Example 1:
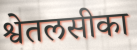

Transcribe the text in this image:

श्वेतलसीका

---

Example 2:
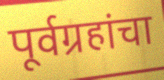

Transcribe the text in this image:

पूर्वग्रहांचा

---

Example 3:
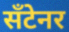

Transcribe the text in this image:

सँटेनर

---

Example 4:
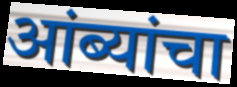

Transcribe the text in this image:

आंब्यांचा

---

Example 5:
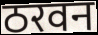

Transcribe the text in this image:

ठरवन